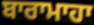
ਬਾਰਾਮਾਹਾ